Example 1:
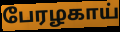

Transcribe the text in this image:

பேரழகாய்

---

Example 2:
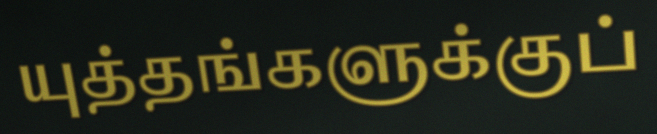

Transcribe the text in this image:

யுத்தங்களுக்குப்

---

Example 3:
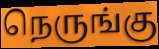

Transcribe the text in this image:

நெருங்கு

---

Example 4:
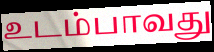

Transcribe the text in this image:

உடம்பாவது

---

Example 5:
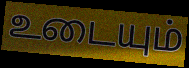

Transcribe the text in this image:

உடையும்